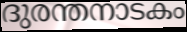
ദുരന്തനാടകം